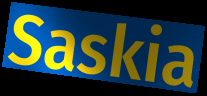
Saskia